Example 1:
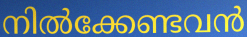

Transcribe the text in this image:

നിൽക്കേണ്ടവൻ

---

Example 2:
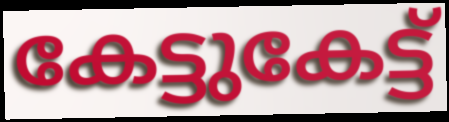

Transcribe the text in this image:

കേട്ടുകേട്ട്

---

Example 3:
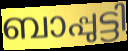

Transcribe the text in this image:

ബാപ്പുട്ടി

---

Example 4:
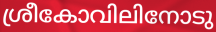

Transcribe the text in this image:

ശ്രീകോവിലിനോടു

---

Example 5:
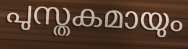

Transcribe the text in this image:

പുസ്തകമായും